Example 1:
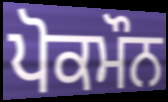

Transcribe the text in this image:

ਪੋਕਮੌਨ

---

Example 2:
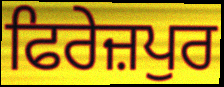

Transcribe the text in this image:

ਫਿਰੇਜ਼ਪੁਰ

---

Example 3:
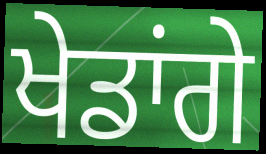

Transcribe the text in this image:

ਖੇਡਾਂਗੇ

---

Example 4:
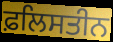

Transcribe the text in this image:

ਫ਼ਲਿਸਤੀਨ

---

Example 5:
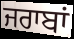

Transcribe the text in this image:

ਜਰਾਬਾਂ